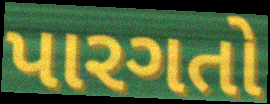
પારગતો